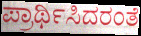
ಪ್ರಾರ್ಥಿಸಿದರಂತೆ